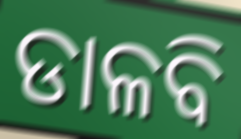
ଡାଳବି